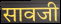
सावजी